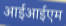
आईआईएम